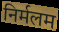
निर्मलम